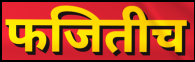
फजितीच